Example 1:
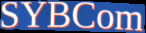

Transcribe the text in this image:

SYBCom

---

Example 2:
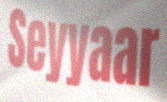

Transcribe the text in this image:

Seyyaar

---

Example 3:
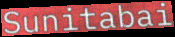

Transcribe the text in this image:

Sunitabai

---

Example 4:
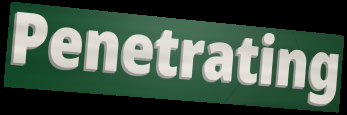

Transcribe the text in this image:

Penetrating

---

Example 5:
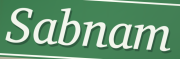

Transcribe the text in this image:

Sabnam